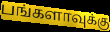
பங்களாவுக்கு